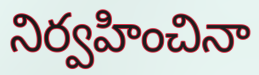
నిర్వహించినా